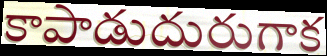
కాపాడుదురుగాక